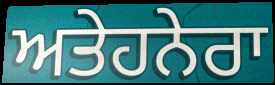
ਅਤੇਹਨੇਰਾ